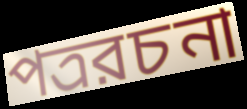
পত্ররচনা